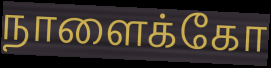
நாளைக்கோ